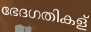
ഭേദഗതികള്